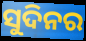
ସୁଦିନର